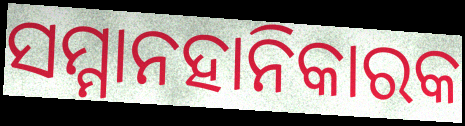
ସମ୍ମାନହାନିକାରକ